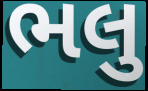
ભલુ